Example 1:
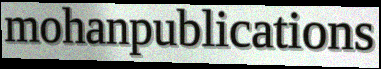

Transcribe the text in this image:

mohanpublications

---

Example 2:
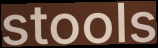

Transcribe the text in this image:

stools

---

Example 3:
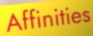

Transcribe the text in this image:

Affinities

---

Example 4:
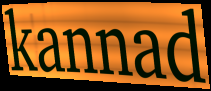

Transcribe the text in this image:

kannad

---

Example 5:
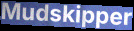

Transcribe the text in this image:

Mudskipper